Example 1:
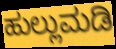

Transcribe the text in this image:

ಹುಲ್ಲುಮಡಿ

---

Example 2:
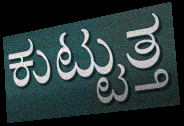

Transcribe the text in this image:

ಕುಟ್ಟುತ್ತ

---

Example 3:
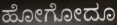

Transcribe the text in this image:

ಹೋಗೋದೂ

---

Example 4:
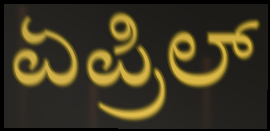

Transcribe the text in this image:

ಏಪ್ರಿಲ್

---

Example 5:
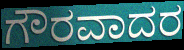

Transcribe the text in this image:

ಗೌರವಾದರ